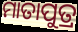
ମାତାପୁତ୍ର